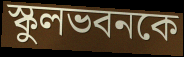
স্কুলভবনকে